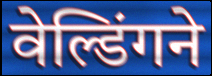
वेल्डिंगने